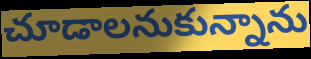
చూడాలనుకున్నాను